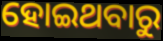
ହୋଇଥବାରୁ